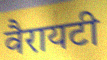
वैरायटी